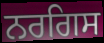
ਨਰਗਿਸ